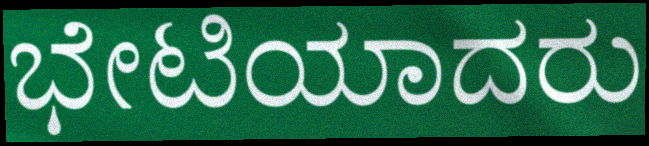
ಭೇಟಿಯಾದರು